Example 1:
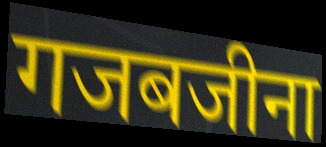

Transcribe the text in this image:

गजबजीना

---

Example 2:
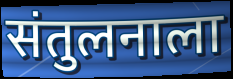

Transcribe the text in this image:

संतुलनाला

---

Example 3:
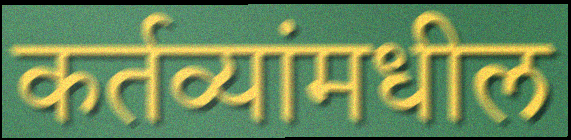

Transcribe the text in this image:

कर्तव्यांमधील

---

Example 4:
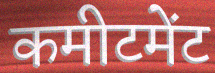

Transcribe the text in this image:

कमीटमेंट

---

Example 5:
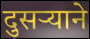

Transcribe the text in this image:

दुसऱ्याने